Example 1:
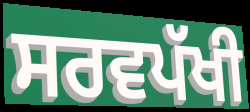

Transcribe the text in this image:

ਸਰਵਪੱਖੀ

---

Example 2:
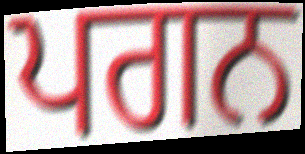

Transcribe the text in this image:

ਪਗਨ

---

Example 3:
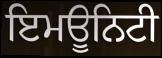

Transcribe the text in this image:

ਇਮਊਨਿਟੀ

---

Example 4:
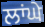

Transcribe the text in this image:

ਲਾਂਘੇ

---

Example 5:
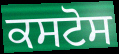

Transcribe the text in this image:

ਕਸਟੋਸ